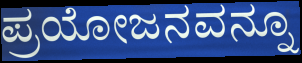
ಪ್ರಯೋಜನವನ್ನೂ